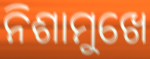
ନିଶାମୁଖେ